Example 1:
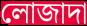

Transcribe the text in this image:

লোজাদা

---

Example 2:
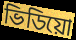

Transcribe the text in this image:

ভিডিয়ো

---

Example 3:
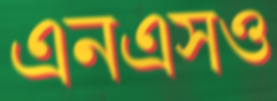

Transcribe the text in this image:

এনএসও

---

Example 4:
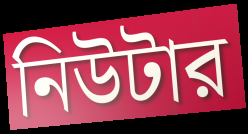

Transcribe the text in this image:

নিউটার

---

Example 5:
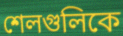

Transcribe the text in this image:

শেলগুলিকে